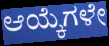
ಆಯ್ಕೆಗಳೇ